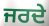
ਜਰਦੇ